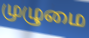
முழுமை